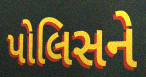
પોલિસને